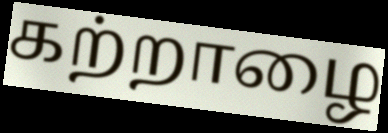
கற்றாழை